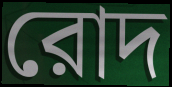
রোদ